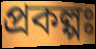
প্ৰকল্পঃ